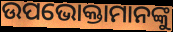
ଉପଭୋକ୍ତାମାନଙ୍କୁ